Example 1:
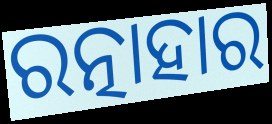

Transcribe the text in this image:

ରତ୍ନାହାର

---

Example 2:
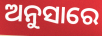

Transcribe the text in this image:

ଅନୁସାରେ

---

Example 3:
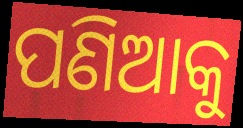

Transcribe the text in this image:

ପଣିଆକୁ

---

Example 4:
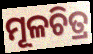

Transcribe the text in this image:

ମୂଳଚିତ୍ର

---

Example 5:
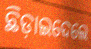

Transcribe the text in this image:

ଛିଡ଼ାଇଦେଲେ